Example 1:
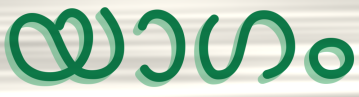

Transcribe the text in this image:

യാഗം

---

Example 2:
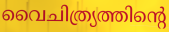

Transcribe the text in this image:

വൈചിത്ര്യത്തിന്റെ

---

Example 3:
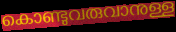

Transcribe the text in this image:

കൊണ്ടുവരുവാനുള്ള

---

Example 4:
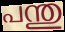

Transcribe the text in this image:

പന്തു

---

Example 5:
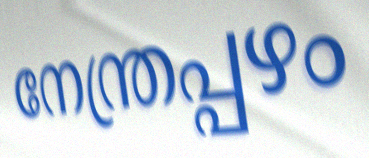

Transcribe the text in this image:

നേന്ത്രപ്പഴം